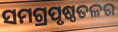
ସମଗ୍ରପୃଷ୍ଠତଳର